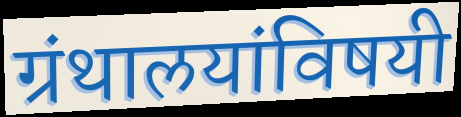
ग्रंथालयांविषयी